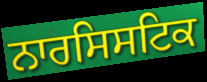
ਨਾਰਸਿਸਟਿਕ